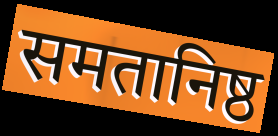
समतानिष्ठ